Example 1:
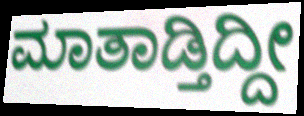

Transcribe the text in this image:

ಮಾತಾಡ್ತಿದ್ದೀ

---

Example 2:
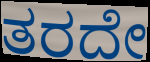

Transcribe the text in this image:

ತರದೇ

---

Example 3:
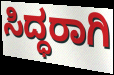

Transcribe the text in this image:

ಸಿದ್ಧರಾಗಿ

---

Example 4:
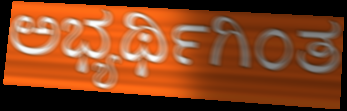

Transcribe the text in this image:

ಅಭ್ಯರ್ಥಿಗಿಂತ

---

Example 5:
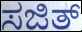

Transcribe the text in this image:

ಸಜಿತ್